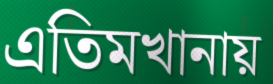
এতিমখানায়